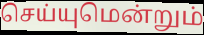
செய்யுமென்றும்